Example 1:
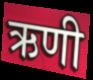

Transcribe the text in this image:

ऋणी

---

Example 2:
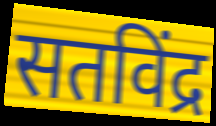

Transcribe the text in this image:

सतविंद्र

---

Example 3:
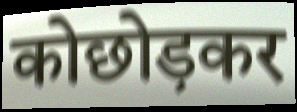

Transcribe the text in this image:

कोछोड़कर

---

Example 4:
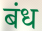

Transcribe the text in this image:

बंध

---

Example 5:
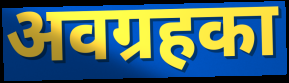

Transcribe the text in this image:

अवग्रहका